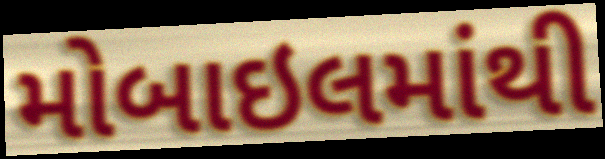
મોબાઇલમાંથી